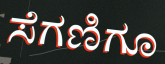
ಸೆಗಣಿಗೂ